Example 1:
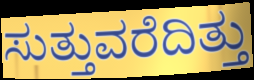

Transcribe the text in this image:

ಸುತ್ತುವರೆದಿತ್ತು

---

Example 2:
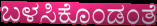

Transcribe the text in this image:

ಬಳಸಿಕೊಂಡಂತೆ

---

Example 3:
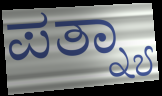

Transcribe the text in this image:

ಪತ್ನ್ಯಾ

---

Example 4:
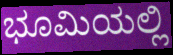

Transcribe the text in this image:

ಭೂಮಿಯಲ್ಲಿ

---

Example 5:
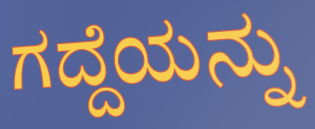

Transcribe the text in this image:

ಗದ್ದೆಯನ್ನು